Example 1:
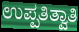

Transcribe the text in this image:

ಉಪ್ಪತಿತ್ವಾತಿ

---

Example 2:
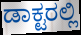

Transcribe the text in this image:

ಡಾಕ್ಟರಲ್ಲಿ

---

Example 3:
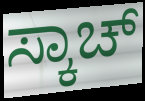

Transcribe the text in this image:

ಸ್ಕಾಚ್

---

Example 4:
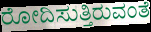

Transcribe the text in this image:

ರೋದಿಸುತ್ತಿರುವಂತೆ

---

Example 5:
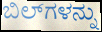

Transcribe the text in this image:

ಬಿಲ್‌ಗಳನ್ನು